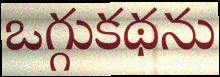
ఒగ్గుకథను